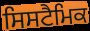
ਸਿਸਟੈਮਿਕ